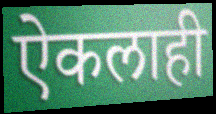
ऐकलाही